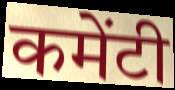
कमेंटी